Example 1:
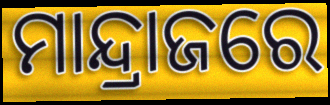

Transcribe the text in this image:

ମାନ୍ଦ୍ରାଜରେ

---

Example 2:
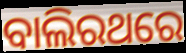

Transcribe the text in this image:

ବାଲିରଥରେ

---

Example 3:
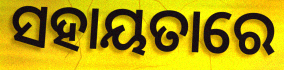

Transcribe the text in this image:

ସହାୟତାରେ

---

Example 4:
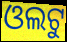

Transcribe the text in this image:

ଓଲଟୁ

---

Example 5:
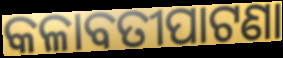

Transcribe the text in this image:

କଳାବତୀପାଟଣା